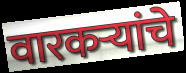
वारकऱ्यांचे